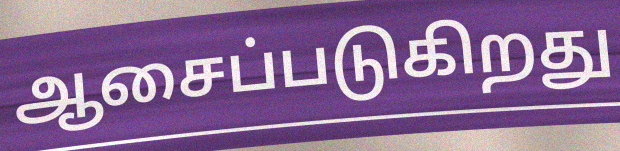
ஆசைப்படுகிறது